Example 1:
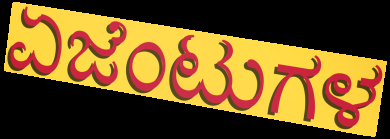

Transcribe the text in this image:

ಏಜೆಂಟುಗಳ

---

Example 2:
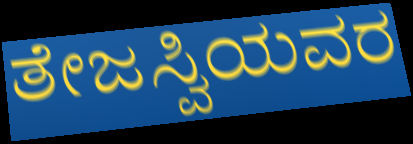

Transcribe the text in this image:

ತೇಜಸ್ವಿಯವರ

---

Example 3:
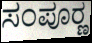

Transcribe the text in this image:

ಸಂಪೂರ್‍ಣ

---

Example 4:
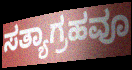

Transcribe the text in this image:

ಸತ್ಯಾಗ್ರಹವೂ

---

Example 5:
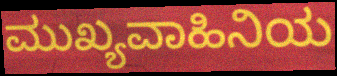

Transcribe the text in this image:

ಮುಖ್ಯವಾಹಿನಿಯ